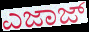
ಎಜಾಜ್